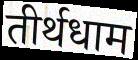
तीर्थधाम